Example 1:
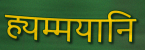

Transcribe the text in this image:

ह्यम्मयानि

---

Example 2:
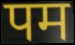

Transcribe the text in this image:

पम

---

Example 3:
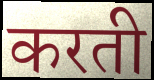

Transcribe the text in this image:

करती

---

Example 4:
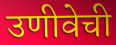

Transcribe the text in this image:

उणीवेची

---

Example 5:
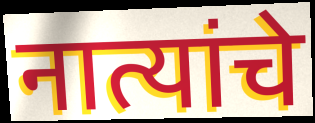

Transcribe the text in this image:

नात्यांचे